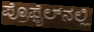
ಪ್ರೊಫೈಲ್‌ನಲ್ಲಿ